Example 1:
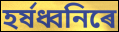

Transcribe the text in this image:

হৰ্ষধ্বনিৰে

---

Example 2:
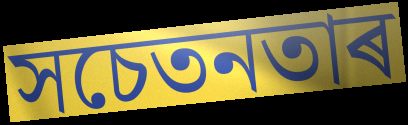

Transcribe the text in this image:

সচেতনতাৰ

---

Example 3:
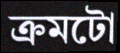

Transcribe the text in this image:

ক্ৰমটো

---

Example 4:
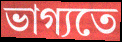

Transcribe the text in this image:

ভাগ্যতে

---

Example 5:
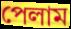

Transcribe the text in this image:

পেলাম